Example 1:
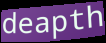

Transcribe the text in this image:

deapth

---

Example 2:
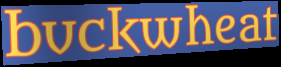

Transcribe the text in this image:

buckwheat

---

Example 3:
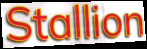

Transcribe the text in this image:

Stallion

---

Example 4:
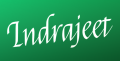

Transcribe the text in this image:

Indrajeet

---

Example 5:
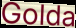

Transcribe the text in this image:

Golda